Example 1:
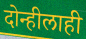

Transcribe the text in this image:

दोन्हीलाही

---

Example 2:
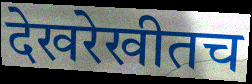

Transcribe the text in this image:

देखरेखीतच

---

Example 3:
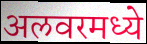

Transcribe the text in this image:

अलवरमध्ये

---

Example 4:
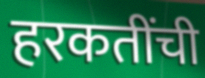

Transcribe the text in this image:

हरकतींची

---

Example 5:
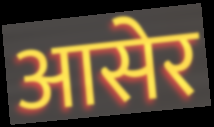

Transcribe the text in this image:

आसेर